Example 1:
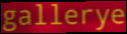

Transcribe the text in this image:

gallerye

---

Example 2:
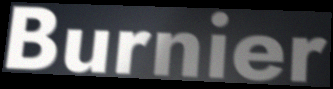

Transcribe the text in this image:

Burnier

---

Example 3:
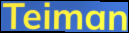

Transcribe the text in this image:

Teiman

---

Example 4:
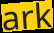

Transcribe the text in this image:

ark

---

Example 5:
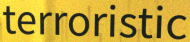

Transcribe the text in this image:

terroristic